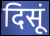
दिसूं